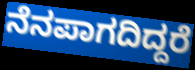
ನೆನಪಾಗದಿದ್ದರೆ